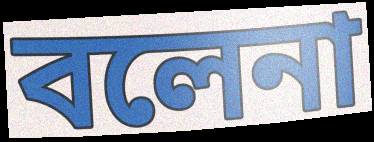
বলেনা